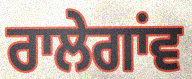
ਰਾਲੇਗਾਂਵ